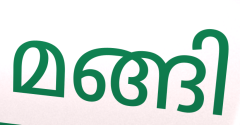
മങ്ങി